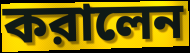
করালেন